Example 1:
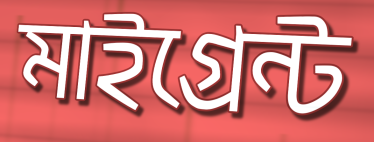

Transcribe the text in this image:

মাইগ্রেন্ট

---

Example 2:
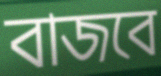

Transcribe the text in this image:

বাজবে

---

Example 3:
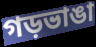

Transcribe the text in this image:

গড়ভাঙা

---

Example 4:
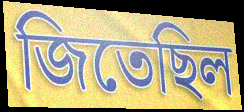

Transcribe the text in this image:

জিতেছিল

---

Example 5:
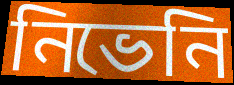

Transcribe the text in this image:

নিভেনি